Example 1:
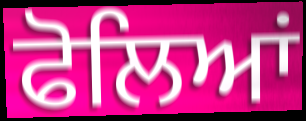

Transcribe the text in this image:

ਫੋਲਿਆਂ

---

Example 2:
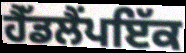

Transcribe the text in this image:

ਹੈੱਡਲੈਂਪਇੱਕ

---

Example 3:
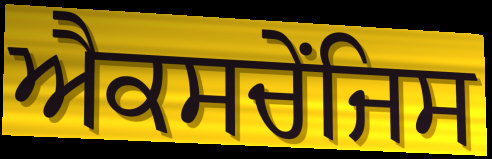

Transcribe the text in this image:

ਐਕਸਚੇਂਜਿਸ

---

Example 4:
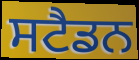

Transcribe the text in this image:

ਸਟੈਡਨ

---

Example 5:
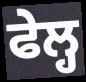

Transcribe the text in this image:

ਫੇਲ੍ਹ